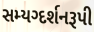
સમ્યગ્દર્શનરૂપી